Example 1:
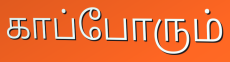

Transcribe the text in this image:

காப்போரும்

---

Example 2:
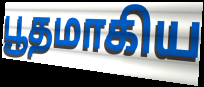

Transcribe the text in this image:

பூதமாகிய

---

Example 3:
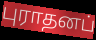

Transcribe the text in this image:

புராதனப்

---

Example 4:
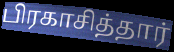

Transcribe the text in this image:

பிரகாசித்தார்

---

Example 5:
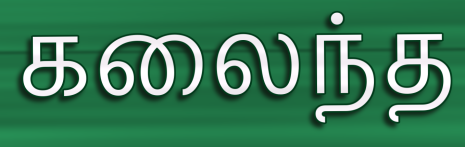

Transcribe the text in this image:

கலைந்த